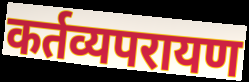
कर्तव्यपरायण